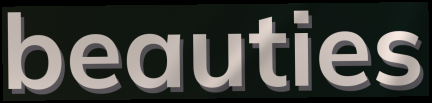
beauties